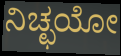
ನಿಚ್ಛಯೋ